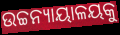
ଉଚ୍ଚନ୍ୟାୟାଳୟକୁ